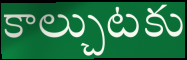
కాల్చుటకు